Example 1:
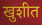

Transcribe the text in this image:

खुशीत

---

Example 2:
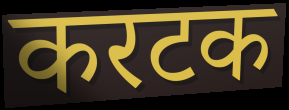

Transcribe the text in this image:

करटक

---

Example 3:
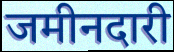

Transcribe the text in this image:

जमीनदारी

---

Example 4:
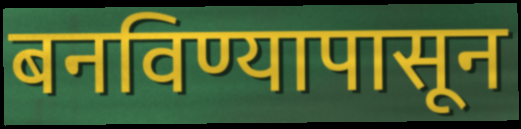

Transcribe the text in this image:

बनविण्यापासून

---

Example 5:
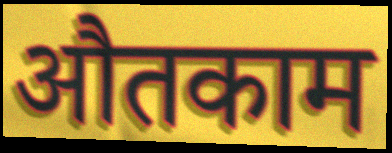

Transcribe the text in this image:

औतकाम